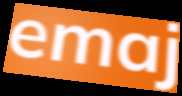
emaj